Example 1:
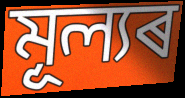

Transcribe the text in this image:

মূল্যৰ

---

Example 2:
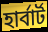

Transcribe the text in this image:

হাৰ্বাৰ্ট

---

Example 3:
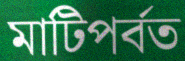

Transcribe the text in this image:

মাটিপৰ্বত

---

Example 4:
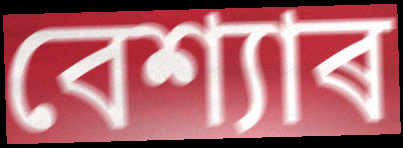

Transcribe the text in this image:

বেশ্যাৰ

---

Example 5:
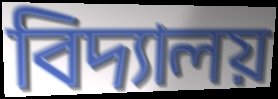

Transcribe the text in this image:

বিদ্যালয়